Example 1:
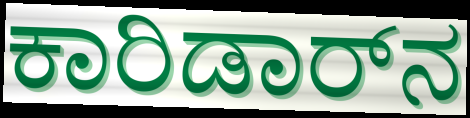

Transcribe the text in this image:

ಕಾರಿಡಾರ್‌ನ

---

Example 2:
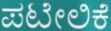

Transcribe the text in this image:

ಪಟೇಲಿಕೆ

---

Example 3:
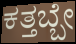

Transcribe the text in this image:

ಕತ್ತಬ್ಬೇ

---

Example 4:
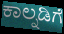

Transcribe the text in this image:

ಕಾಲ್ನಡಿಗೆ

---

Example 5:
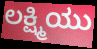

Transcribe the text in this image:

ಲಕ್ಷ್ಮಿಯು